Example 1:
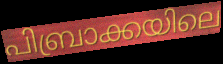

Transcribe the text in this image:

പിബ്രാക്കയിലെ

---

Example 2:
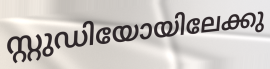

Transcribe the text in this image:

സ്റ്റുഡിയോയിലേക്കു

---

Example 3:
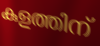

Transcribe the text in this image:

കുളത്തിന്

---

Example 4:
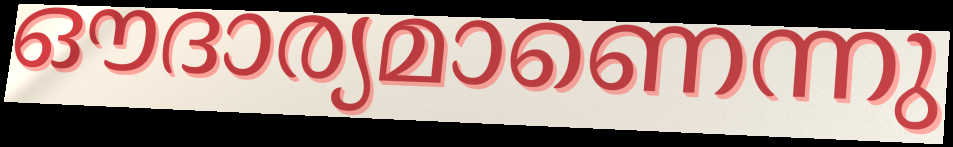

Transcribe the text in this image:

ഔദാര്യമാണെന്നു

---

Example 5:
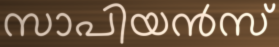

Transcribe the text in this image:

സാപിയൻസ്